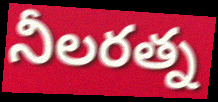
నీలరత్న